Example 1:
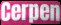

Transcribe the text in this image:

Cerpen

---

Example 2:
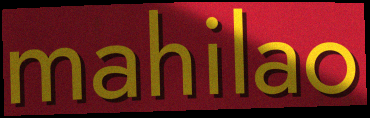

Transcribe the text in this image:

mahilao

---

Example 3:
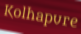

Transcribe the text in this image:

Kolhapure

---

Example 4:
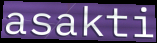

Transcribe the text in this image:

asakti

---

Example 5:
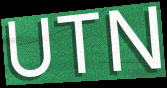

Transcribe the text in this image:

UTN